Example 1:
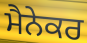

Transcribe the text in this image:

ਮੈਨੇਕਰ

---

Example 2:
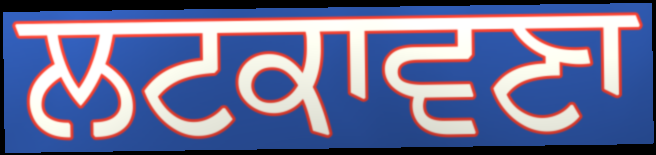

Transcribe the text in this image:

ਲਟਕਾਵਣਾ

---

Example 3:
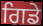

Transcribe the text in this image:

ਗਿਡੇ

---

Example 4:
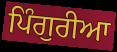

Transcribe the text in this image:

ਪਿੰਗੁਰੀਆ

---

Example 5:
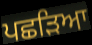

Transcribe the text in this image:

ਪਛੜਿਆ